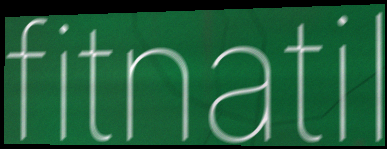
fitnatil